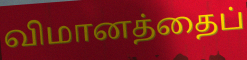
விமானத்தைப்